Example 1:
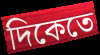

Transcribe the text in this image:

দিকেতে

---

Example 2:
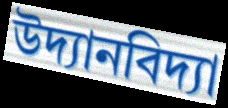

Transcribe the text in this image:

উদ্যানবিদ্যা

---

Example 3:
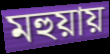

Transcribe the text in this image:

মহুয়ায়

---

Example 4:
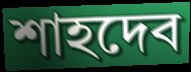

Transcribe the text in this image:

শাহদেব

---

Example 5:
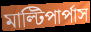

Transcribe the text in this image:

মাল্টিপার্পাস